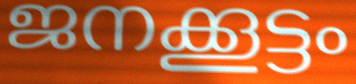
ജനക്കൂട്ടം